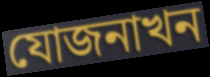
যোজনাখন